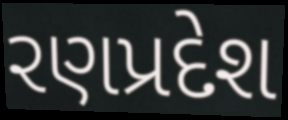
રણપ્રદેશ